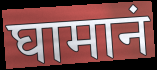
घामानं